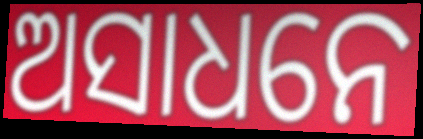
ଅସାଧନେ